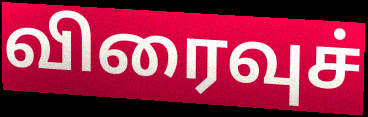
விரைவுச்